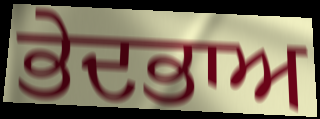
ਭੇਦਭਾਅ